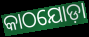
କାଠଯୋଡ଼ା